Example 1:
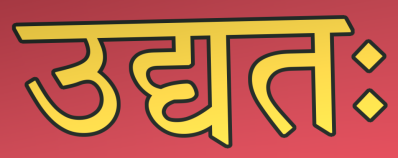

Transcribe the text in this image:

उद्यतः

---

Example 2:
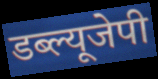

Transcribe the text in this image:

डब्ल्यूजेपी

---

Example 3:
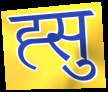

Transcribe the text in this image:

ह्सु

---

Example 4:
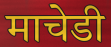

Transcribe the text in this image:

माचेडी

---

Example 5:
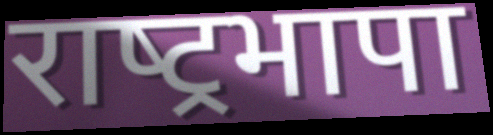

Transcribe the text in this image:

राष्ट्रभापा